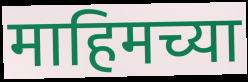
माहिमच्या